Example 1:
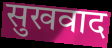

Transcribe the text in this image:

सुखवाद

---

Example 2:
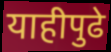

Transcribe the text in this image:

याहीपुढे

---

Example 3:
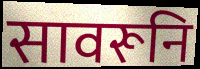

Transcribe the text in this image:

सावरूनि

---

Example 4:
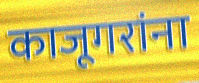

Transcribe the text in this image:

काजूगरांना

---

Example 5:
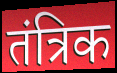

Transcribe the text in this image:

तंत्रिक